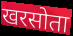
खरसोता